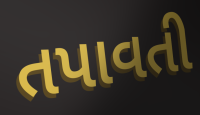
તપાવતી